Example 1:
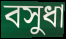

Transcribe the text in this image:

বসুধা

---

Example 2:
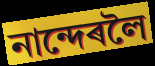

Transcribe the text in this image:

নান্দেৰলৈ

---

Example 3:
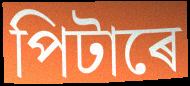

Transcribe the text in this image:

পিটাৰে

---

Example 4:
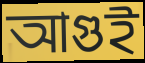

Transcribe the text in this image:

আগুই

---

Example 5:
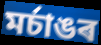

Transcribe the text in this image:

মৰ্চাঙৰ